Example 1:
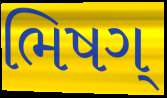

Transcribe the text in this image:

ભિષગ્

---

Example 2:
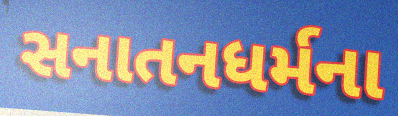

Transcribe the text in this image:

સનાતનધર્મના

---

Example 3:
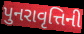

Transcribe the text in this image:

પુનરાવૃત્તિની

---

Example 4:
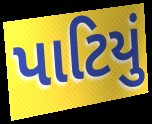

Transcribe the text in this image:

પાટિયું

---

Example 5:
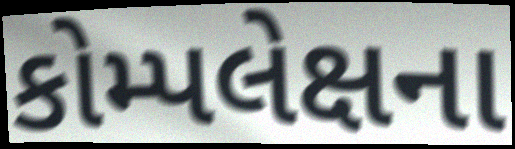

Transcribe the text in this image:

કોમ્પલેક્ષના